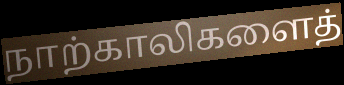
நாற்காலிகளைத்